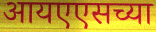
आयएएसच्या